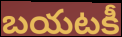
బయటకీ